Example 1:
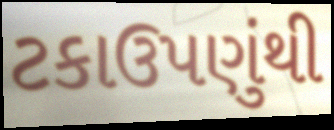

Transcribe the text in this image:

ટકાઉપણુંથી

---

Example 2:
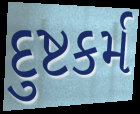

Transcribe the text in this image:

દુષ્ટકર્મ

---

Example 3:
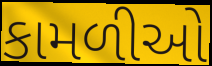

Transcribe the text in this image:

કામળીઓ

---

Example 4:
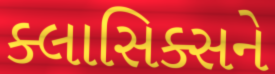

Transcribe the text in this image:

ક્લાસિક્સને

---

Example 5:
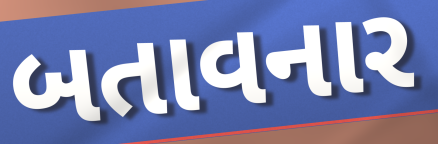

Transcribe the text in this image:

બતાવનાર